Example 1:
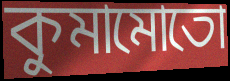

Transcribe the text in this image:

কুমামোতো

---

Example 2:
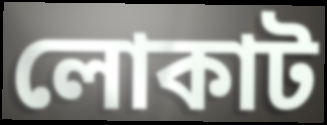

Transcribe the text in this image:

লোকাট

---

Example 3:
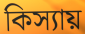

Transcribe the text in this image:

কিস্যায়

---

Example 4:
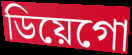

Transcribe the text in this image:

ডিয়েগো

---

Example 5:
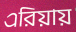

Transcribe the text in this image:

এরিয়ায়